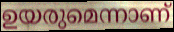
ഉയരുമെന്നാണ്